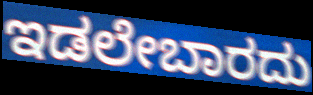
ಇಡಲೇಬಾರದು